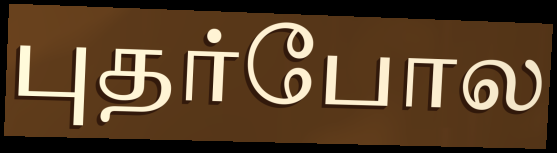
புதர்போல